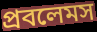
প্রবলেমস